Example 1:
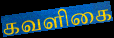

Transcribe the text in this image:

கவளிகை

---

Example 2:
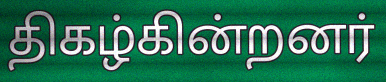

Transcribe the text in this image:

திகழ்கின்றனர்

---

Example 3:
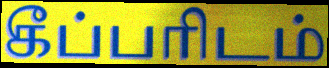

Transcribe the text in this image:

கீப்பரிடம்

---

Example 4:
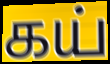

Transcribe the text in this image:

கய்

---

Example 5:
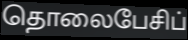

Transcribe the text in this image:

தொலைபேசிப்